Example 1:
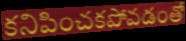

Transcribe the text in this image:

కనిపించకపోవడంతో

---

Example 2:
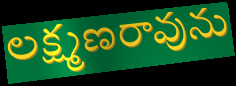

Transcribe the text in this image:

లక్ష్మణరావును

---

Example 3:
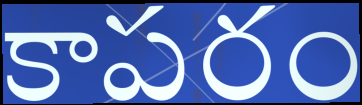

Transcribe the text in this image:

కాపరం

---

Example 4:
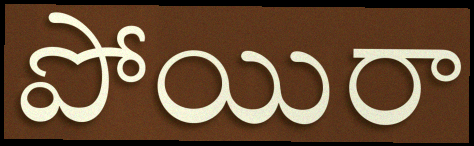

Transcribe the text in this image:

పోయిరా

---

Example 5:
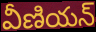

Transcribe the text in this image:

వీణియన్